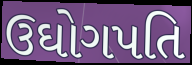
ઉઘોગપતિ